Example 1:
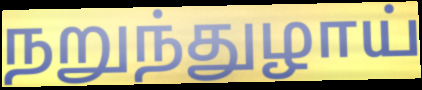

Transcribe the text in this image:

நறுந்துழாய்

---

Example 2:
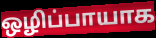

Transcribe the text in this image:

ஒழிப்பாயாக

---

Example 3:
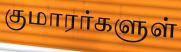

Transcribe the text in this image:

குமாரர்களுள்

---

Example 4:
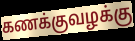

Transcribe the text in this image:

கணக்குவழக்கு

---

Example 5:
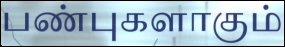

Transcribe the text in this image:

பண்புகளாகும்